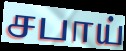
சபாய்